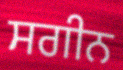
ਸਗੀਨ